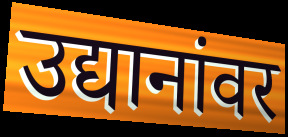
उद्यानांवर